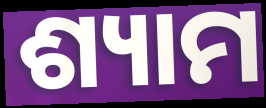
ଶ୍ୟାମ